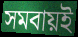
সমবায়ই